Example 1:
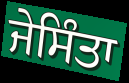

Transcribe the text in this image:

ਜੇਸਿੰਤਾ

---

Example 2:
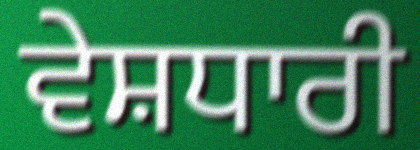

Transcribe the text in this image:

ਵੇਸ਼ਧਾਰੀ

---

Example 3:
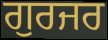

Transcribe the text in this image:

ਗੁਰਜਰ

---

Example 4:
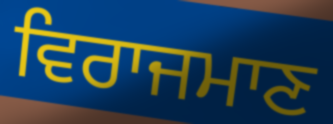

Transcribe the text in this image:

ਵਿਰਾਜਮਾਣ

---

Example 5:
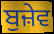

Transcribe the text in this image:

ਬੁਜ਼ੇਵ